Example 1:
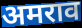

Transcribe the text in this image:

अमराव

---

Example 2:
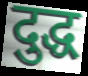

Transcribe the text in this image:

दुद्ध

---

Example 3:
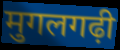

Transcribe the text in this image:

मुगलगढ़ी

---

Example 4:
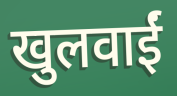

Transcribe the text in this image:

खुलवाईं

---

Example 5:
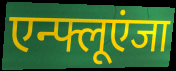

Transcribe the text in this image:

एन्फ्लूएंजा